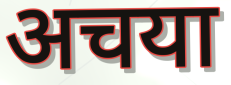
अचया